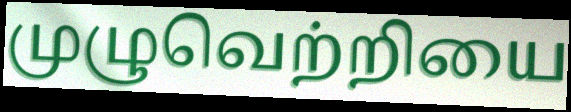
முழுவெற்றியை